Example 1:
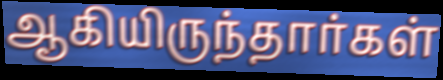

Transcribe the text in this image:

ஆகியிருந்தார்கள்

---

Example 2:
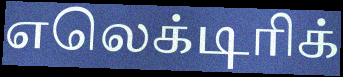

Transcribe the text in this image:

எலெக்டிரிக்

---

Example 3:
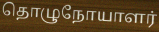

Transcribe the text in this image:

தொழுநோயாளர்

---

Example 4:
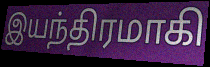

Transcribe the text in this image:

இயந்திரமாகி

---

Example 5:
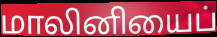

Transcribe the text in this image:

மாலினியைப்